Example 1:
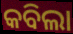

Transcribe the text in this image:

କବିଲା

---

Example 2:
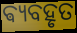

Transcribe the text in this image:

ଵ୍ୟବହୃତ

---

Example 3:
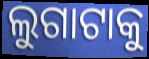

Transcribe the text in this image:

ଲୁଗାଟାକୁ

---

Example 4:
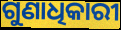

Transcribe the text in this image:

ଗୁଣାଧିକାରୀ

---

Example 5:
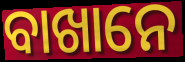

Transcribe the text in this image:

ବାଖାନେ